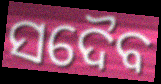
ସଦୈବ